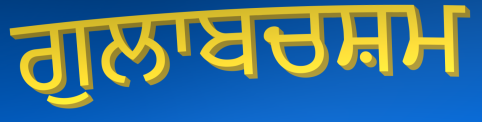
ਗੁਲਾਬਚਸ਼ਮ